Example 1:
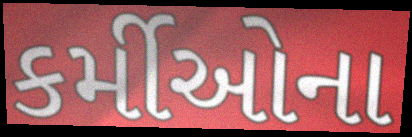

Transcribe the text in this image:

કર્મીઓના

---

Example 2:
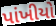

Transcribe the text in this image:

પાંખીયો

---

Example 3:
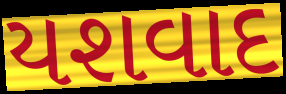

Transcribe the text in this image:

યશવાદ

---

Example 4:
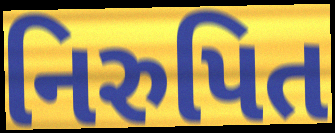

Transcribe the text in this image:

નિરુપિત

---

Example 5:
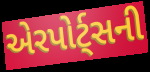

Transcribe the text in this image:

એરપોર્ટ્સની